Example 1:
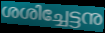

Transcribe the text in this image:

ശശിച്ചേട്ടനു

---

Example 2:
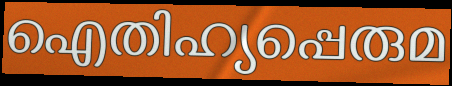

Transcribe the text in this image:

ഐതിഹ്യപ്പെരുമ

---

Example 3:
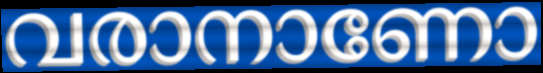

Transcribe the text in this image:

വരാനാണോ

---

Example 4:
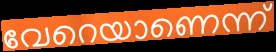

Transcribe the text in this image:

വേറെയാണെന്ന്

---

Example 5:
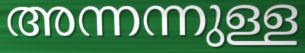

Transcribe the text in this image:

അന്നന്നുള്ള